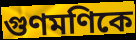
গুণমণিকে